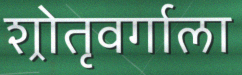
श्रोतृवर्गाला